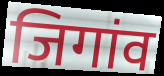
जिगांव